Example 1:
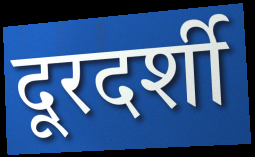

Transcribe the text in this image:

दूरदर्शी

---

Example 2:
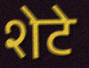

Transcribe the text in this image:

शेटे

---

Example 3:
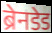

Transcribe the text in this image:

ब्रेनडेड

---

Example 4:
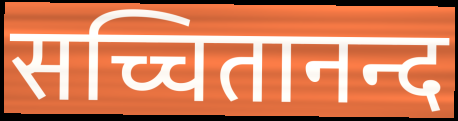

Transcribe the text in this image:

सच्चितानन्द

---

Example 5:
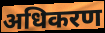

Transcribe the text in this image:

अधिकरण